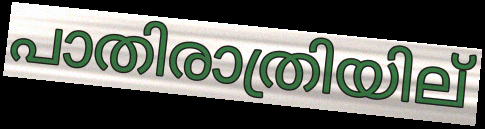
പാതിരാത്രിയില്